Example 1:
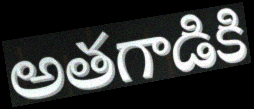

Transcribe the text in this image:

అతగాడికి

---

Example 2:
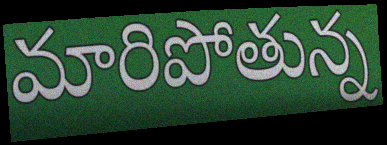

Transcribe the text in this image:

మారిపోతున్న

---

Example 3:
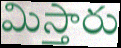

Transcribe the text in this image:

మిస్తారు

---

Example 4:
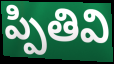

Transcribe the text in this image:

ప్పితివి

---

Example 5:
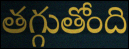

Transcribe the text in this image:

తగ్గుతోంది